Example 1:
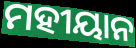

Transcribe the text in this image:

ମହୀୟାନ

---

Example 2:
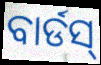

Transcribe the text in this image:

ବାର୍ଡସ୍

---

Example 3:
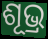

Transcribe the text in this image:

ଶୂଭ୍ର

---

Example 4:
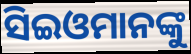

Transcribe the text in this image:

ସିଇଓମାନଙ୍କୁ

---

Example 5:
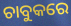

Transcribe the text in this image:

ଚାବୁକରେ